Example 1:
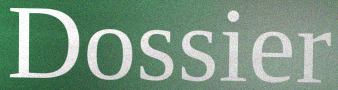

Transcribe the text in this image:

Dossier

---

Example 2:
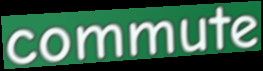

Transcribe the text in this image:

commute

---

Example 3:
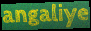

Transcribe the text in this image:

angaliye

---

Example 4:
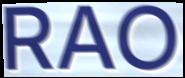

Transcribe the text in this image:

RAO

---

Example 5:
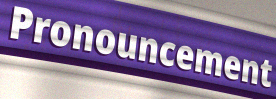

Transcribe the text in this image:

Pronouncement